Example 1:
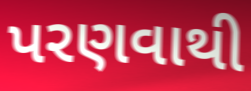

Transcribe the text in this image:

પરણવાથી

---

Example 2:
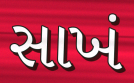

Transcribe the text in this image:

સાખં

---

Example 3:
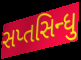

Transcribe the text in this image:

સપ્તસિન્ધુ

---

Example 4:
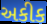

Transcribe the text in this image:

અકીક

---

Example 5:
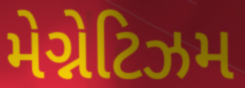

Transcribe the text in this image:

મેગ્નેટિઝમ